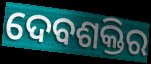
ଦେବଶକ୍ତିର